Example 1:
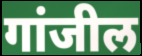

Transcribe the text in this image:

गांजील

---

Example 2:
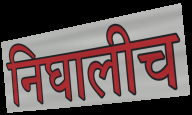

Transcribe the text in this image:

निघालीच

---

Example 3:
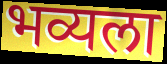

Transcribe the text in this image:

भव्यला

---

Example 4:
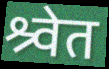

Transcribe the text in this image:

श्र्वेत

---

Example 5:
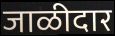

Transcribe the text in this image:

जाळीदार